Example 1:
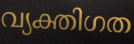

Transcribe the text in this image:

വ്യക്തിഗത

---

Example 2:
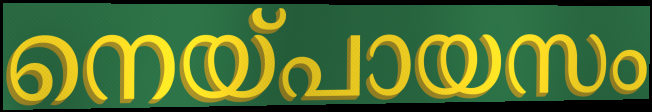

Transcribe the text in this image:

നെയ്പായസം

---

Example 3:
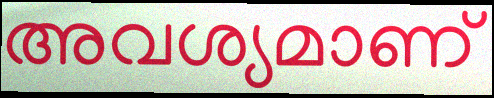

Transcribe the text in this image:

അവശ്യമാണ്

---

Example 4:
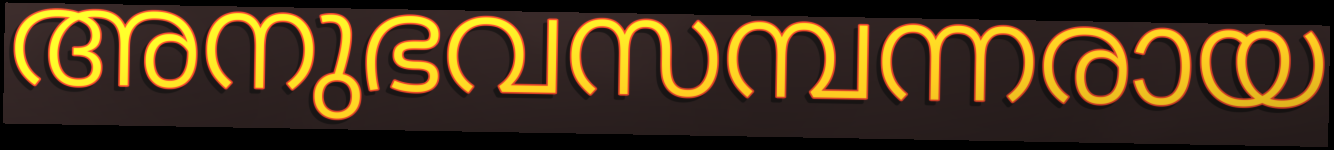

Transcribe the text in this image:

അനുഭവസമ്പന്നരായ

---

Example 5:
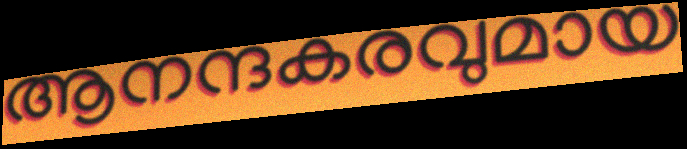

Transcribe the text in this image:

ആനന്ദകരവുമായ